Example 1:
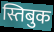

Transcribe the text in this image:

स्तिबुक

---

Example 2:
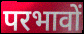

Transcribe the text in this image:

परभावों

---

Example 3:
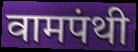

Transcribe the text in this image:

वामपंथी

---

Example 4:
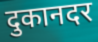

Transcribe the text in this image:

दुकानदर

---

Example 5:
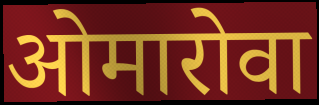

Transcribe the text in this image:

ओमारोवा